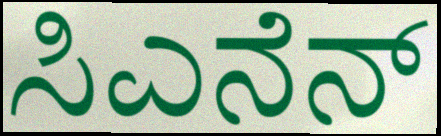
ಸಿಎನೆನ್